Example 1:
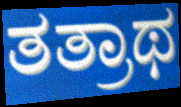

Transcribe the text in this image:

ತತ್ರಾಥ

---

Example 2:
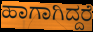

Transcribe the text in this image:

ಹಾಗಾಗಿದ್ದರೆ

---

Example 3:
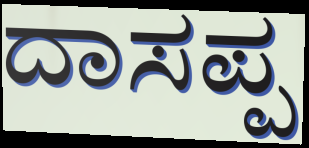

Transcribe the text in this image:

ದಾಸಪ್ಪ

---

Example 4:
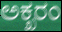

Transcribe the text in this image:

ಅಕ್ಖರಂ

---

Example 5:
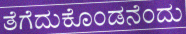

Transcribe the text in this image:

ತೆಗೆದುಕೊಂಡನೆಂದು